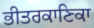
ਭੀਤਰਕਾਣਿਕਾ